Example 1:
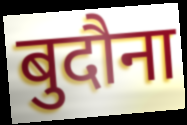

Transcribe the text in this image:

बुदौना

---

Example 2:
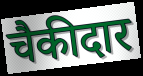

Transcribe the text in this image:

चैकीदार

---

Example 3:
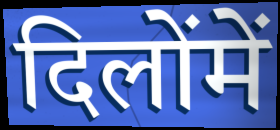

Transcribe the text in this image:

दिलोंमें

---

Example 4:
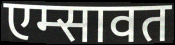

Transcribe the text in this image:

एम्सावत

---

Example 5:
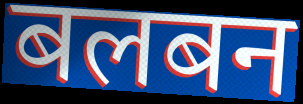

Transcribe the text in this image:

बलबन